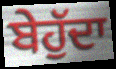
ਬੇਹੁੱਦਾ